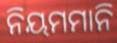
ନିୟମମାନି